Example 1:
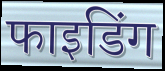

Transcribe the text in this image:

फाइडिंग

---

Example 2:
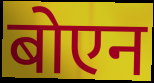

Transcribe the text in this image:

बोएन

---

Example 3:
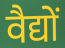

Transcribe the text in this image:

वैद्यों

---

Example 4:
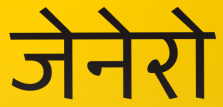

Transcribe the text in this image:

जेनेरो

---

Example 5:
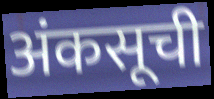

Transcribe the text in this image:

अंकसूची